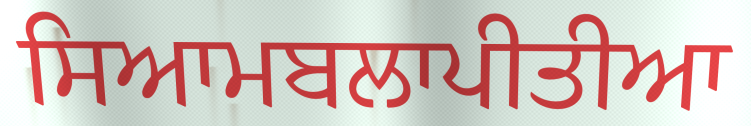
ਸਿਆਮਬਲਾਪੀਤੀਆ